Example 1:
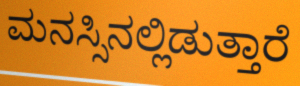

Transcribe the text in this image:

ಮನಸ್ಸಿನಲ್ಲಿಡುತ್ತಾರೆ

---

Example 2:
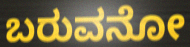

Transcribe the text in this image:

ಬರುವನೋ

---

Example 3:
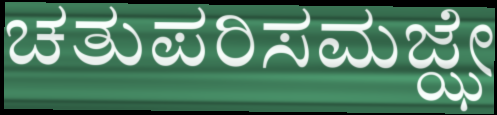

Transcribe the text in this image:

ಚತುಪರಿಸಮಜ್ಝೇ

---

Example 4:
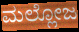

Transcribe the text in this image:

ಮಲ್ಲೋಜ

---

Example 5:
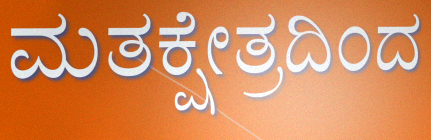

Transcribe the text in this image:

ಮತಕ್ಷೇತ್ರದಿಂದ